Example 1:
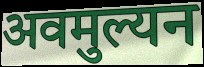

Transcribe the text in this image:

अवमुल्यन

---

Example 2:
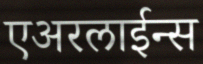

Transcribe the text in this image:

एअरलाईन्स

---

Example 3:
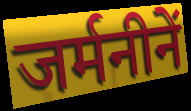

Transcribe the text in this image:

जर्मनीनें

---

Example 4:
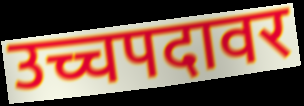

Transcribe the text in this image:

उच्चपदावर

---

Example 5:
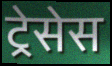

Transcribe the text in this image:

ट्रेसेस